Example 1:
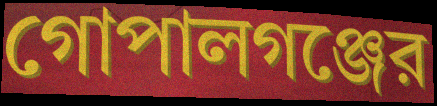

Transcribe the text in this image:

গোপালগঞ্জের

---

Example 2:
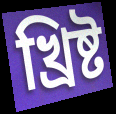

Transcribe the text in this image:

খ্রিষ্ট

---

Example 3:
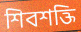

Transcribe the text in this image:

শিবশক্তি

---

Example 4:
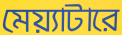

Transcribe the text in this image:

মেয়্যাটারে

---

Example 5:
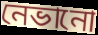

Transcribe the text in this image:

নেভানো